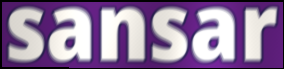
sansar